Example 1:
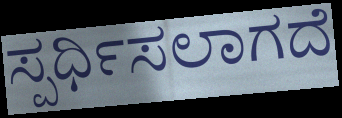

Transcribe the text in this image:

ಸ್ಪರ್ಧಿಸಲಾಗದೆ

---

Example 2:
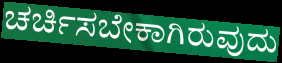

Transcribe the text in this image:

ಚರ್ಚಿಸಬೇಕಾಗಿರುವುದು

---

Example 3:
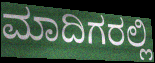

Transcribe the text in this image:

ಮಾದಿಗರಲ್ಲಿ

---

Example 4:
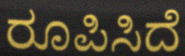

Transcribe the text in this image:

ರೂಪಿಸಿದೆ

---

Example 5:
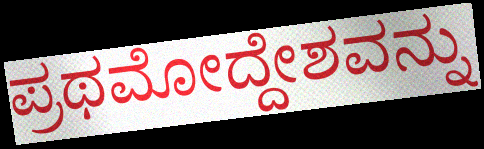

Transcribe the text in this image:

ಪ್ರಥಮೋದ್ದೇಶವನ್ನು